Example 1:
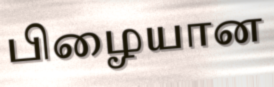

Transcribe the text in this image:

பிழையான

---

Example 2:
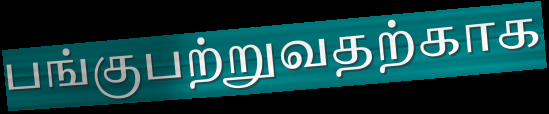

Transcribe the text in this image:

பங்குபற்றுவதற்காக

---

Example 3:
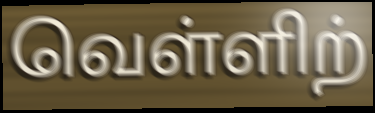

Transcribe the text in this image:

வெள்ளிற்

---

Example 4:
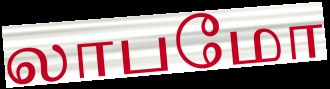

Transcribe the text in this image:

லாபமோ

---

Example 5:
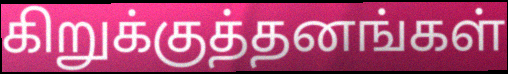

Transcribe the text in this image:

கிறுக்குத்தனங்கள்